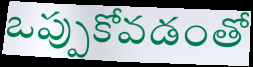
ఒప్పుకోవడంతో